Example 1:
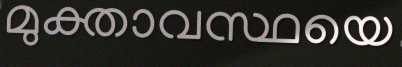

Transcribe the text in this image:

മുക്താവസ്ഥയെ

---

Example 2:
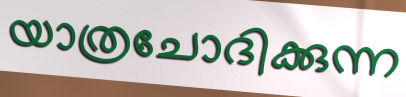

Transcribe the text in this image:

യാത്രചോദിക്കുന്ന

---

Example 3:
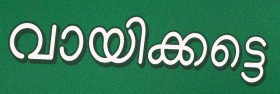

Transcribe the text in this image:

വായിക്കട്ടെ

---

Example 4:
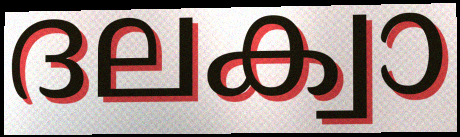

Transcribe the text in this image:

ദലക്വാ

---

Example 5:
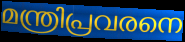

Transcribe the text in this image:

മന്ത്രിപ്രവരനെ